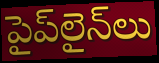
పైప్‌లైన్‌లు